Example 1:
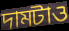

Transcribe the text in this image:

দামটাও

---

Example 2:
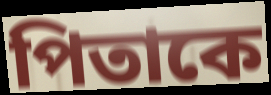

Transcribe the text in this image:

পিতাকে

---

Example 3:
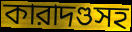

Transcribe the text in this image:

কারাদণ্ডসহ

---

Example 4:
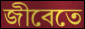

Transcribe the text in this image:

জীবেতে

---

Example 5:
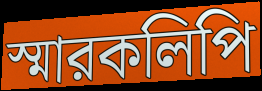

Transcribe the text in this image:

স্মারকলিপি